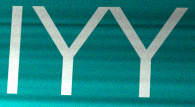
IYY